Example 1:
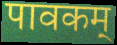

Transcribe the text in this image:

पावकम्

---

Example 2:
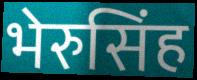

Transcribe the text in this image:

भेरुसिंह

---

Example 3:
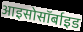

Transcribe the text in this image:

आइसोसॉर्बाइड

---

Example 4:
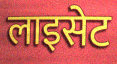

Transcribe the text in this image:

लाइसेट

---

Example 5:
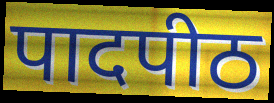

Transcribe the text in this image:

पादपीठ